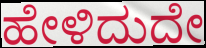
ಹೇಳಿದುದೇ